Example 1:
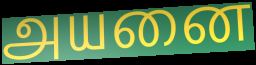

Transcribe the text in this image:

அயனை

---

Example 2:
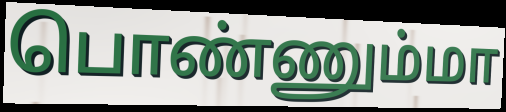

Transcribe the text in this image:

பொண்ணும்மா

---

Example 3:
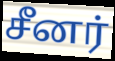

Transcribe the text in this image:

சீனர்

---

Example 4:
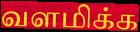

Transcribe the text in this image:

வளமிக்க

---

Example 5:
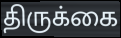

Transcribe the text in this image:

திருக்கை